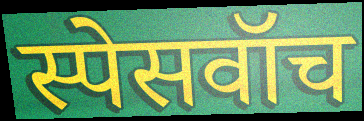
स्पेसवॉच